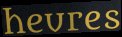
heures